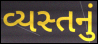
વ્યસ્તનું